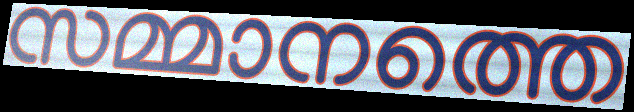
സമ്മാനത്തെ